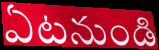
ఏటనుండి